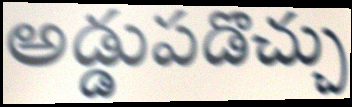
అడ్డుపడొచ్చు